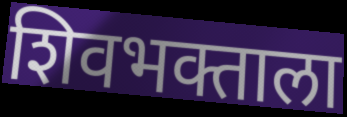
शिवभक्ताला